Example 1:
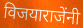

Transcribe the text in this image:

विजयाराजेंनी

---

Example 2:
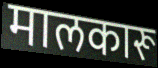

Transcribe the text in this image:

मालकारू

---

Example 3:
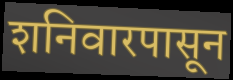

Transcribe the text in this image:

शनिवारपासून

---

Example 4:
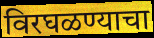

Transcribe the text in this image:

विरघळण्याचा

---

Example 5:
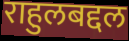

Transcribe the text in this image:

राहुलबद्दल